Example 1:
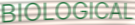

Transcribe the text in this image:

BIOLOGICAL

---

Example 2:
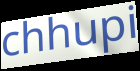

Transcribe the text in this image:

chhupi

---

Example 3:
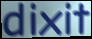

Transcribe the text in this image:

dixit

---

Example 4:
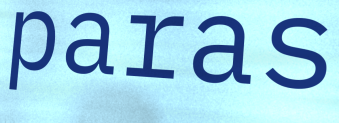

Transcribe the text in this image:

paras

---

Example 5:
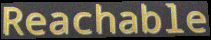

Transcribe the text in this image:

Reachable